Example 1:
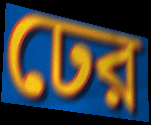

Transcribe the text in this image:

ঢের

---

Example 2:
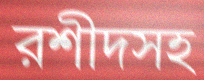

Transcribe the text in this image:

রশীদসহ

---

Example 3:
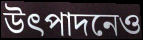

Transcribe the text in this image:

উৎপাদনেও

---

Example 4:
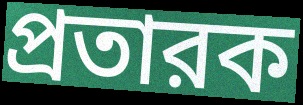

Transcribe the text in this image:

প্রতারক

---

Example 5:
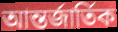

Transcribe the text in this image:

আন্তর্জার্তিক